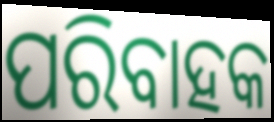
ପରିବାହକ